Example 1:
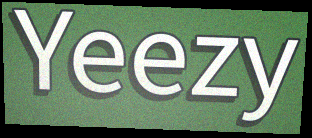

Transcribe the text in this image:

Yeezy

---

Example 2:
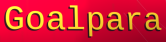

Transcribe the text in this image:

Goalpara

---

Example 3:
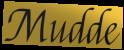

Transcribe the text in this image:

Mudde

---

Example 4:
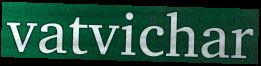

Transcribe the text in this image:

vatvichar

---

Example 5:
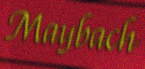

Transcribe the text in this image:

Maybach